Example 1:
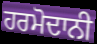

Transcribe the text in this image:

ਹਰਮੋਦਾਨੀ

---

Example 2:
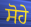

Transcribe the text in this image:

ਸੋਹੇ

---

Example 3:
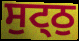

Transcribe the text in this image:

ਸੁਟ੍ਠੁ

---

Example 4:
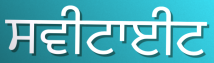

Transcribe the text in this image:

ਸਵੀਟਾਈਟ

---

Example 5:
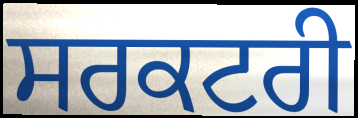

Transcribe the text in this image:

ਸਰਕਟਰੀ